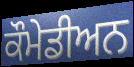
ਕੌਮੇਡੀਅਨ